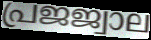
പ്രജജ്വാല